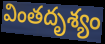
వింతదృశ్యం